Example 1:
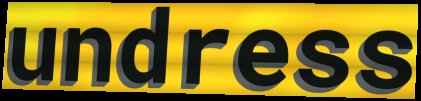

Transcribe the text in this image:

undress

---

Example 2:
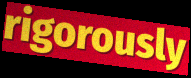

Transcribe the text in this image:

rigorously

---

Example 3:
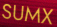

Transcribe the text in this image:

SUMX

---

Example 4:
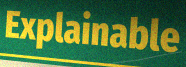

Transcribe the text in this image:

Explainable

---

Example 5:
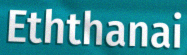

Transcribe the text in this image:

Eththanai